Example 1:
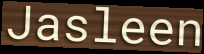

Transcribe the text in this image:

Jasleen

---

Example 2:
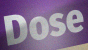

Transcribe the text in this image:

Dose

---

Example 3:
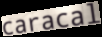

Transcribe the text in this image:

caracal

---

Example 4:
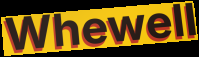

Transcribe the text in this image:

Whewell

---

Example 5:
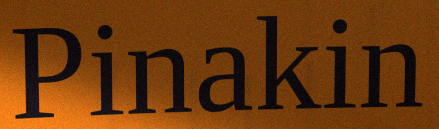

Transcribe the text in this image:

Pinakin